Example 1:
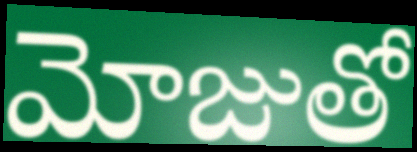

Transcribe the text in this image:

మోజుతో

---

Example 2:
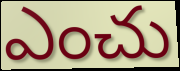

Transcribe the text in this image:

ఎంచు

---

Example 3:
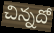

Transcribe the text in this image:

చిన్నదో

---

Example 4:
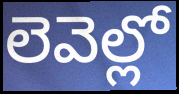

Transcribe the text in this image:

లెవెల్లో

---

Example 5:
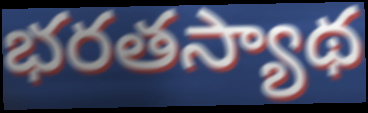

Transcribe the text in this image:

భరతస్యాథ